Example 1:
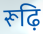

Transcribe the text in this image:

रूढ़ि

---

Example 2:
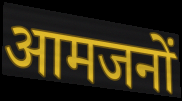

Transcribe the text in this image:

आमजनों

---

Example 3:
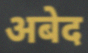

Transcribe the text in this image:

अबेद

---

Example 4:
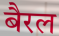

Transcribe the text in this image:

बैरल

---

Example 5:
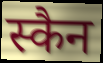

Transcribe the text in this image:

स्कैन